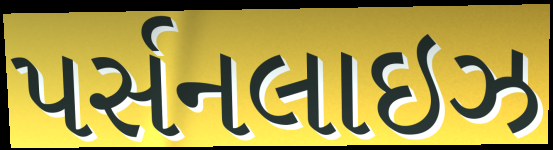
પર્સનલાઇઝ